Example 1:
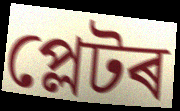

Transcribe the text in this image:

প্লেটৰ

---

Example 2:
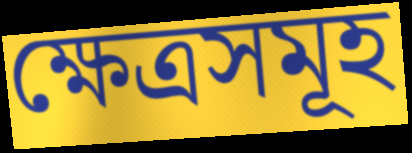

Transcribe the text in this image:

ক্ষেত্ৰসমূহ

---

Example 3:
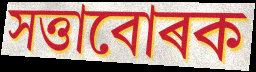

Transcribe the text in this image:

সত্তাবোৰক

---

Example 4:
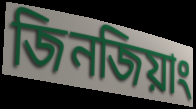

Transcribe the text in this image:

জিনজিয়াং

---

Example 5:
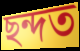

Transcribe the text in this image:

ছন্দত